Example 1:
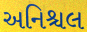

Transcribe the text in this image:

અનિશ્ચલ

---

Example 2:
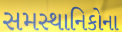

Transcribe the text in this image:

સમસ્થાનિકોના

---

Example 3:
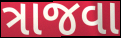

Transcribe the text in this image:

ત્રાજવા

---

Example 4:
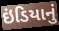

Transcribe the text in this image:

ઇંડિયાનું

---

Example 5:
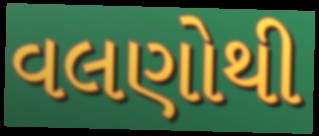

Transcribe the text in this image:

વલણોથી